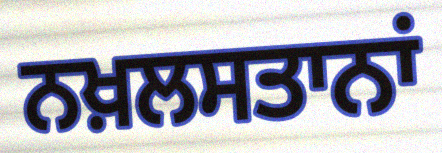
ਨਖ਼ਲਸਤਾਨਾਂ